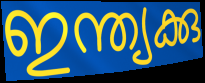
ഇന്ത്യക്കു